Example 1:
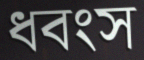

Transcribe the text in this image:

ধবংস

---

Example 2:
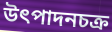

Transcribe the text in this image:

উৎপাদনচক্র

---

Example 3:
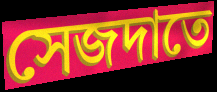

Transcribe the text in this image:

সেজদাতে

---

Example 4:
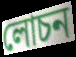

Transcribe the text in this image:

লোচন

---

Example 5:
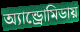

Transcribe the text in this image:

অ্যান্ড্রোমিডায়